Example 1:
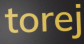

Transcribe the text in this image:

torej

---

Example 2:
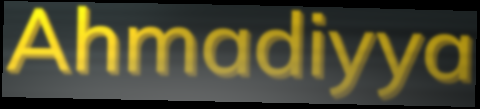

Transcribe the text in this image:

Ahmadiyya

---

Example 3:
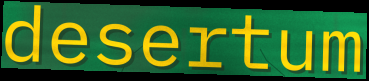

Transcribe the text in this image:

desertum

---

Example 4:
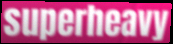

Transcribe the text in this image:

superheavy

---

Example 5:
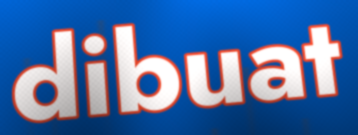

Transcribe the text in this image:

dibuat